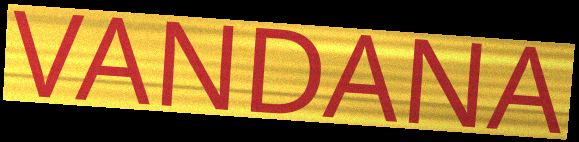
VANDANA